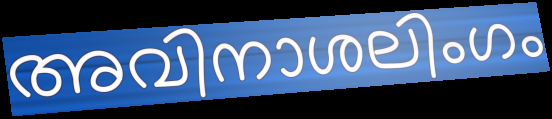
അവിനാശലിംഗം